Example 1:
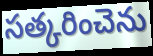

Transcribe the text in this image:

సత్కరించెను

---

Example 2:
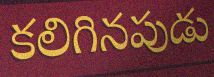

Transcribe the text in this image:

కలిగినపుడు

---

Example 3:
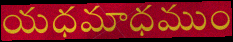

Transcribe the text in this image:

యధమాధముం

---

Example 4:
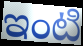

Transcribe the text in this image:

ఇంటి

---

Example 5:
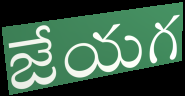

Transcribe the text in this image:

జేయగ